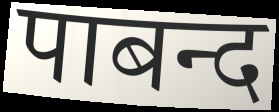
पाबन्द